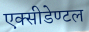
एक्सीडेण्टल